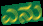
ಎನು